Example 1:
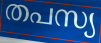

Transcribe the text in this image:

തപസ്യ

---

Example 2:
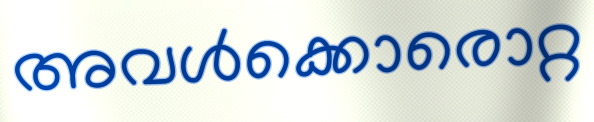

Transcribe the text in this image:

അവൾക്കൊരൊറ്റ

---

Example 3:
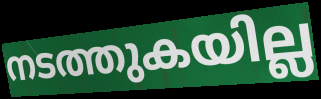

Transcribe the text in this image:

നടത്തുകയില്ല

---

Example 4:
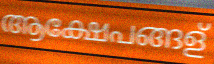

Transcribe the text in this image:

ആക്ഷേപങ്ങള്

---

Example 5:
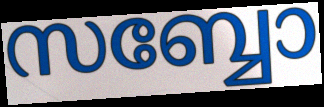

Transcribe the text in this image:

സബ്ബോ